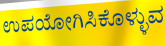
ಉಪಯೋಗಿಸಿಕೊಳ್ಳುವ